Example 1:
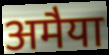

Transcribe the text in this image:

अमैया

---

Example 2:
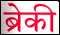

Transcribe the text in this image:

ब्रेकी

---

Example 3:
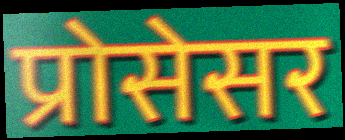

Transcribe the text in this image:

प्रोसेसर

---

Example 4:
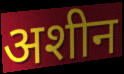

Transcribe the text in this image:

अशीन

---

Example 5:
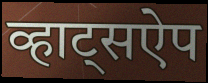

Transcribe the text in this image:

व्‍हाट्सऐप